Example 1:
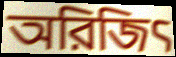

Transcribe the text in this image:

অরিজিৎ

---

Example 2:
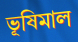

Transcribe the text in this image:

ভূষিমাল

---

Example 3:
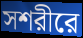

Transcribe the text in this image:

সশরীরে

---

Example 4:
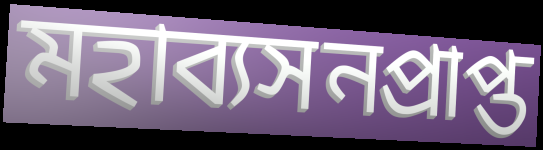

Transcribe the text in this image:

মহাব্যসনপ্রাপ্ত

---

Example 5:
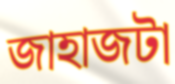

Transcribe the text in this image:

জাহাজটা